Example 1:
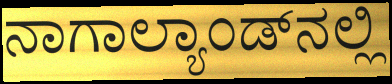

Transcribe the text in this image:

ನಾಗಾಲ್ಯಾಂಡ್‌ನಲ್ಲಿ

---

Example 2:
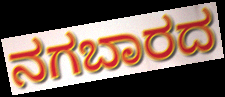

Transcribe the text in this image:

ನಗಬಾರದ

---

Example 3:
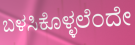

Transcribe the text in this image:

ಬಳಸಿಕೊಳ್ಳಲೆಂದೇ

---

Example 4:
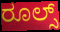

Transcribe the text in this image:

ರೂಲ್ಸ್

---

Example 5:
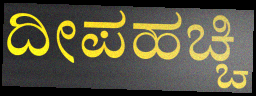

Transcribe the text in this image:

ದೀಪಹಚ್ಚಿ